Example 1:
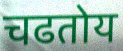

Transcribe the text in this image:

चढतोय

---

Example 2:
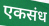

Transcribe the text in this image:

एकसंध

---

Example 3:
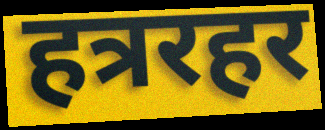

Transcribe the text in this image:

हत्ररहर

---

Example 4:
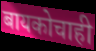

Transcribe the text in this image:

बायकोचाही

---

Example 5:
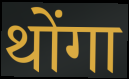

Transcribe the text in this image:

थोंगा